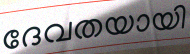
ദേവതയായി